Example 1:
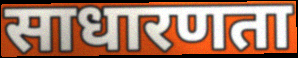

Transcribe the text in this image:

साधारणता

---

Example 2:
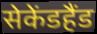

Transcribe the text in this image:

सेकेंडहैंड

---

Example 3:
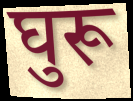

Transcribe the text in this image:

घुरू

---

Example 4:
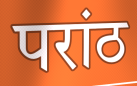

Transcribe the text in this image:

परांठ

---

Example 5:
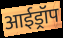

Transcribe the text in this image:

आईड्रॉप